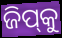
ଜିପ୍‌କୁ